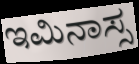
ಇಮಿನಾಸ್ಸ